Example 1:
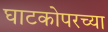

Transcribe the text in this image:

घाटकोपरच्या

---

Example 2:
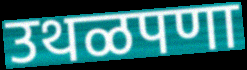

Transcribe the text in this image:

उथळपणा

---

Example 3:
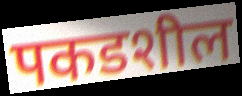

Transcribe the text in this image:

पकडशील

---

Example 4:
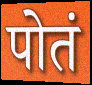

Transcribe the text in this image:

पोतं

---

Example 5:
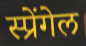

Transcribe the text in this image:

स्प्रेंगेल